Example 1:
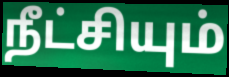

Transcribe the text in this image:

நீட்சியும்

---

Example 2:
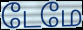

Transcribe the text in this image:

டேமே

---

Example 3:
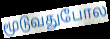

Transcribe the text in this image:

மூடுவதுபோல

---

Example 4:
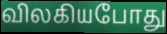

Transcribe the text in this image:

விலகியபோது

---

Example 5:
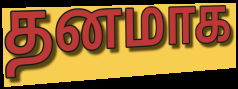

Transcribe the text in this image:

தனமாக